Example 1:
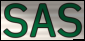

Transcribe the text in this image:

SAS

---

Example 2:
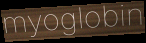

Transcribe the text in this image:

myoglobin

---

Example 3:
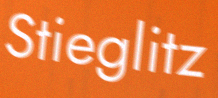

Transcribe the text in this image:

Stieglitz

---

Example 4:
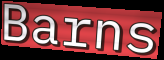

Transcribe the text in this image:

Barns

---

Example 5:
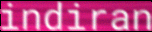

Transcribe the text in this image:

indiran